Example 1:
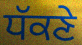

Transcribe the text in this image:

ਧੱਕਣੇ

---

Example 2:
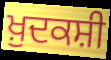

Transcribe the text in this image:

ਖ਼ੁਦਕਸ਼ੀ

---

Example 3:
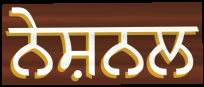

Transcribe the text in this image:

ਨੇਸ਼ਨਲ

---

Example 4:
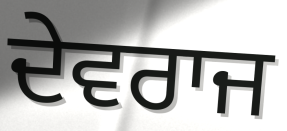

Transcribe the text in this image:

ਦੇਵਰਾਜ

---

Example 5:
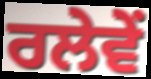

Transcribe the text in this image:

ਰਲੇਵੇਂ